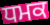
ਧਮਕ